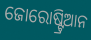
ଜୋରୋଷ୍ଟ୍ରିଆନ